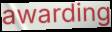
awarding